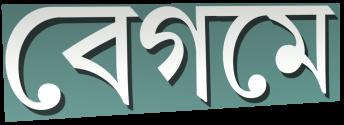
বেগমে